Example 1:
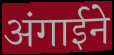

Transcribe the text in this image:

अंगाईने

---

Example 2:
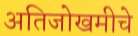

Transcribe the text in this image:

अतिजोखमीचे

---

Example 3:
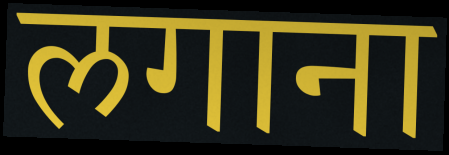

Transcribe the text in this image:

लगाना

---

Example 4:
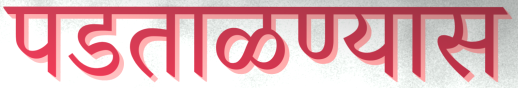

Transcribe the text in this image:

पडताळण्यास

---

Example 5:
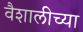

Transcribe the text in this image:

वैशालीच्या